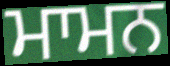
ਮਾਮਨ